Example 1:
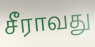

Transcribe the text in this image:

சீராவது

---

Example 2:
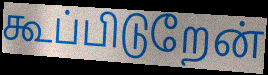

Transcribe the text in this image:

கூப்பிடுறேன்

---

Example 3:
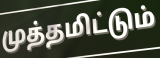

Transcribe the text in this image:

முத்தமிட்டும்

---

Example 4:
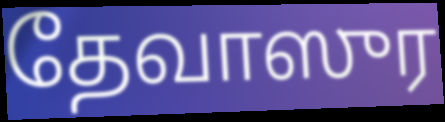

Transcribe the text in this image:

தேவாஸுர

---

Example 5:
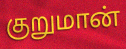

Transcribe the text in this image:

குறுமான்